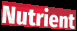
Nutrient